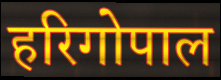
हरिगोपाल